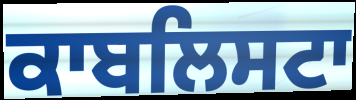
ਕਾਬਲਿਸਟਾ